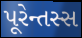
પૂરેન્તસ્સ